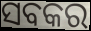
ସବକର